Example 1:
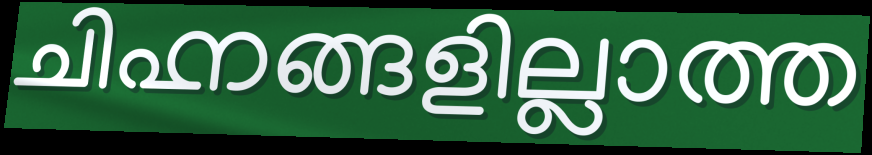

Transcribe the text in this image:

ചിഹ്നങ്ങളില്ലാത്ത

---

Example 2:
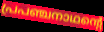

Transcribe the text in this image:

പ്രപഞ്ചനാഥന്റെ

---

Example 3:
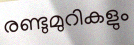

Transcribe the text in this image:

രണ്ടുമുറികളും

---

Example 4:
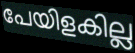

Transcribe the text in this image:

പേയിളകില്ല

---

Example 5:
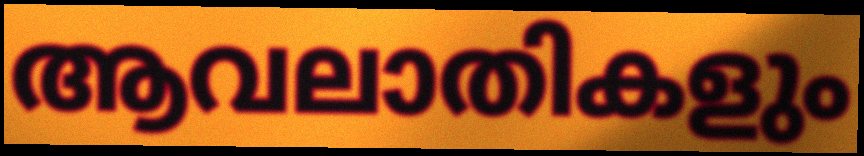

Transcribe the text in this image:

ആവലാതികളും